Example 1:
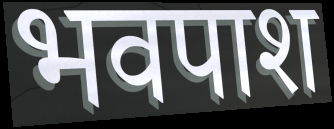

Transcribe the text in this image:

भवपाश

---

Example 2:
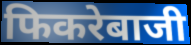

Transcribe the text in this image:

फिकरेबाजी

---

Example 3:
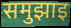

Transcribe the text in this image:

समुझाइ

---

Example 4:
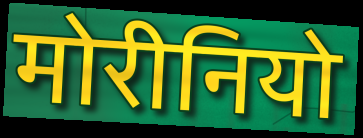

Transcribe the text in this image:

मोरीनियो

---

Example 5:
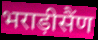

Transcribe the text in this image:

भराड़ीसैंण